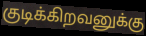
குடிக்கிறவனுக்கு